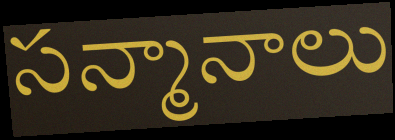
సన్మానాలు